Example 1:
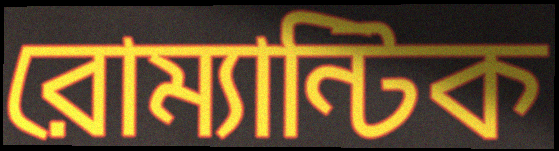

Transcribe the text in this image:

রোম্যান্টিক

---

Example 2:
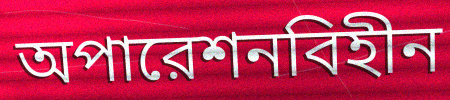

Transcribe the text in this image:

অপারেশনবিহীন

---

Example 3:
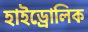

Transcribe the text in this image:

হাইড্রোলিক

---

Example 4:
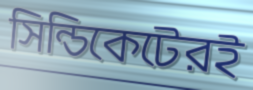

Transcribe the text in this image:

সিন্ডিকেটেরই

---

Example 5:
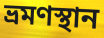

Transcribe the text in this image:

ভ্রমণস্থান